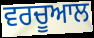
ਵਰਚੂਆਲ